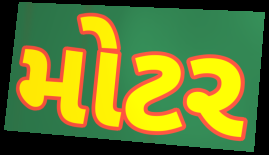
મોટર